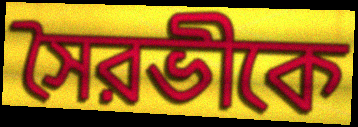
সৈরভীকে